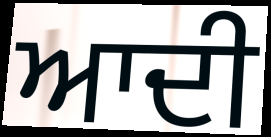
ਆਦੀ